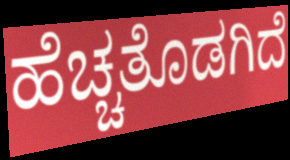
ಹೆಚ್ಚತೊಡಗಿದೆ